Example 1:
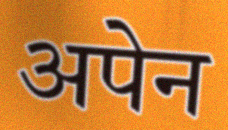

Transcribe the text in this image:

अपेन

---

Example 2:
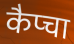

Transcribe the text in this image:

कैप्चा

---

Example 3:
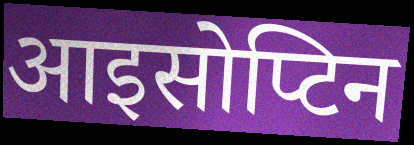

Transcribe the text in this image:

आइसोप्टिन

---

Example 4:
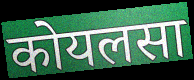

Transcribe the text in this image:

कोयलसा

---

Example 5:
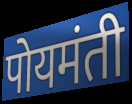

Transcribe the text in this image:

पोयमंती